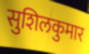
सुशिलकुमार